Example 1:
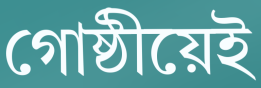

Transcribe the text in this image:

গোষ্ঠীয়েই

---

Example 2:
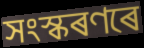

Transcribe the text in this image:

সংস্কৰণৰে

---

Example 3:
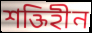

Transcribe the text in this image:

শক্তিহীন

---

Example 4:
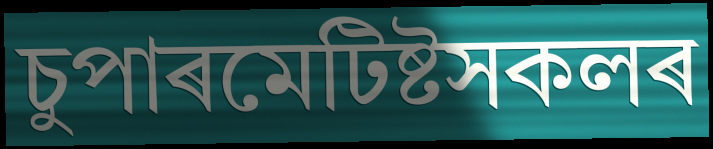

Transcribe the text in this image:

চুপাৰমেটিষ্টসকলৰ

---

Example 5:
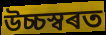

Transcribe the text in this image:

উচ্চস্বৰত